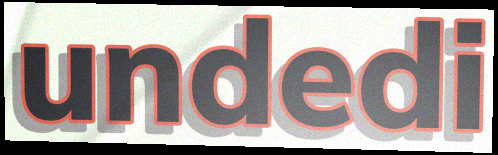
undedi